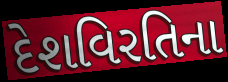
દેશવિરતિના